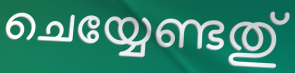
ചെയ്യേണ്ടതു്